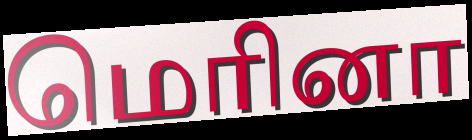
மெரினா